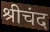
श्रीचंद